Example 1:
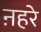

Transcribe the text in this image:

ऩहरे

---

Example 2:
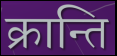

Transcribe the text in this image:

क्रान्ति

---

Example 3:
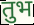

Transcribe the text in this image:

तुभ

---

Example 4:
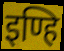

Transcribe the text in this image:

इण्हि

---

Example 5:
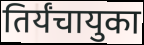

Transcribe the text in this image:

तिर्यंचायुका